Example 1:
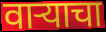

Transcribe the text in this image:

वाऱ्याचा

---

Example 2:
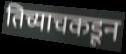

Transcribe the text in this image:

तिच्याचकडून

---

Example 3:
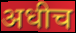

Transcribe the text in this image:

अधीच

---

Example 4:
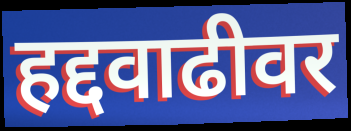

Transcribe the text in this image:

हद्दवाढीवर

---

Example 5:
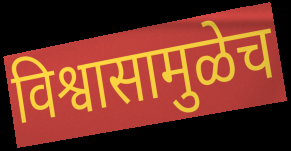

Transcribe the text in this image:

विश्वासामुळेच